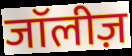
जॉलीज़